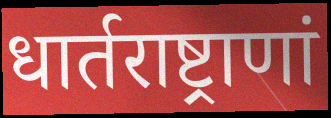
धार्तराष्ट्राणां